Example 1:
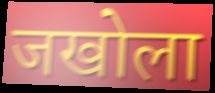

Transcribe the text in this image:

जखोला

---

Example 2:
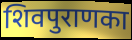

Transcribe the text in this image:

शिवपुराणका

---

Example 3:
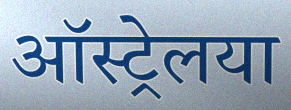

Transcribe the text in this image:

ऑस्ट्रेलया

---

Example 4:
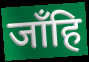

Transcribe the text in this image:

जाँहि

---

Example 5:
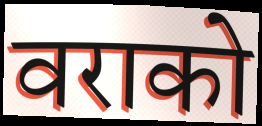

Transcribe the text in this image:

वराको